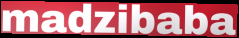
madzibaba